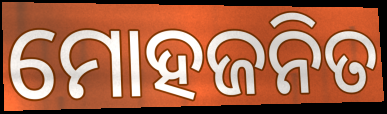
ମୋହଜନିତ